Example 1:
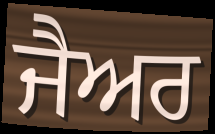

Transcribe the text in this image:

ਜੈਅਰ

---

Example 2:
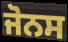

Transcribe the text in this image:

ਜੋਨਸ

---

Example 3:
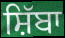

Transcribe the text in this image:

ਸ਼ਿੱਬਾ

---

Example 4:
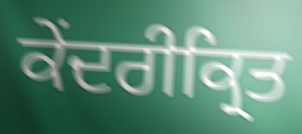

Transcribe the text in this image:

ਕੇਂਦਰੀਕ੍ਰਿਤ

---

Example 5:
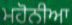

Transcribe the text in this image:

ਮਹੋਨੀਆ